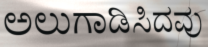
ಅಲುಗಾಡಿಸಿದವು